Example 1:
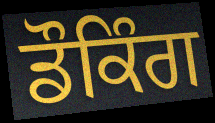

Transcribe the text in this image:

ਡੌਕਿੰਗ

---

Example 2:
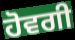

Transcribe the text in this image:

ਹੋਵਗੀ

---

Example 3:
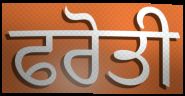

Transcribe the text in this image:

ਫਰੋਤੀ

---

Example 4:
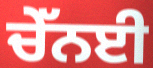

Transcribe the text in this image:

ਚੇੱਨਈ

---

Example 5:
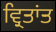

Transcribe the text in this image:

ਵ੍ਰਿਤਾਂਤ